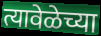
त्यावेळेच्या